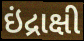
ઇંદ્રાક્ષી